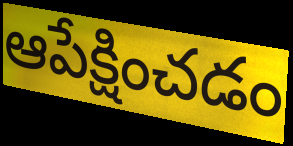
ఆపేక్షించడం